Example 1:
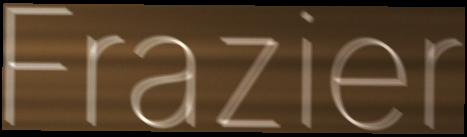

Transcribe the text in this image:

Frazier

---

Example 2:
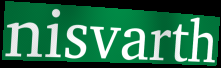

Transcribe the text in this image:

nisvarth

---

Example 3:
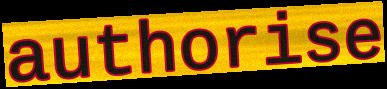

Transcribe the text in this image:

authorise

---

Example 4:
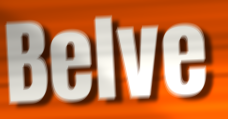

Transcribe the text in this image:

Belve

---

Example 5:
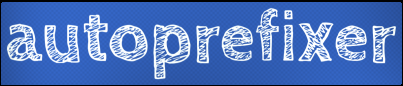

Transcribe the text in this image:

autoprefixer